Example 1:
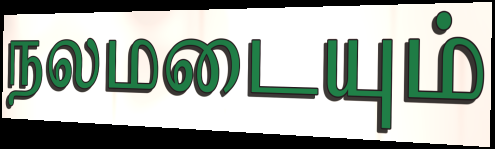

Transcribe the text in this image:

நலமடையும்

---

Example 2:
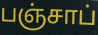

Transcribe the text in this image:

பஞ்சாப்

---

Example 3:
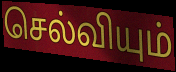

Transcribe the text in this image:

செல்வியும்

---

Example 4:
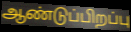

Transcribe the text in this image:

ஆண்டுப்பிறப்பு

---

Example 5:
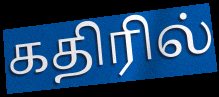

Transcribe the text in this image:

கதிரில்